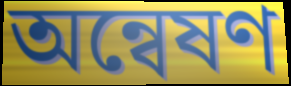
অন্বেষণ